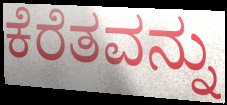
ಕೆರೆತವನ್ನು